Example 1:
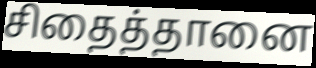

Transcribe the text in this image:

சிதைத்தானை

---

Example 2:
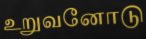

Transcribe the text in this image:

உறுவனோடு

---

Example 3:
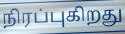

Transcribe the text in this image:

நிரப்புகிறது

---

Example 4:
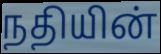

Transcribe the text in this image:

நதியின்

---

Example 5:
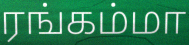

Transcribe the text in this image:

ரங்கம்மா